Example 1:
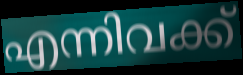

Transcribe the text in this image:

എന്നിവക്ക്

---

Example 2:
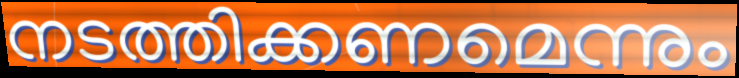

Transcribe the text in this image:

നടത്തിക്കണമെന്നും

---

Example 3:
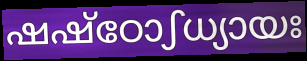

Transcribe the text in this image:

ഷഷ്ഠോഽധ്യായഃ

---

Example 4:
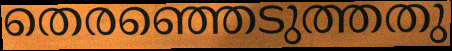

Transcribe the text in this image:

തെരഞ്ഞെടുത്തതു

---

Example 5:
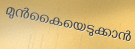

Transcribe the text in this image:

മുൻകൈയെടുക്കാൻ